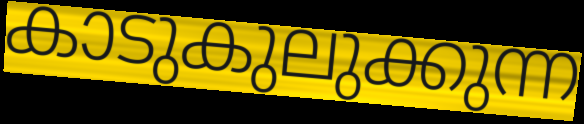
കാടുകുലുക്കുന്ന